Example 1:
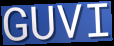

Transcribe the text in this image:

GUVI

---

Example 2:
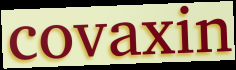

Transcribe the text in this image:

covaxin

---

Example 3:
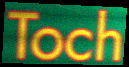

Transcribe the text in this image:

Toch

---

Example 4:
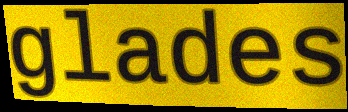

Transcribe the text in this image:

glades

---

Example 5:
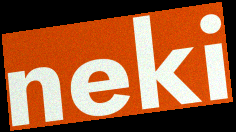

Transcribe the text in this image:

neki